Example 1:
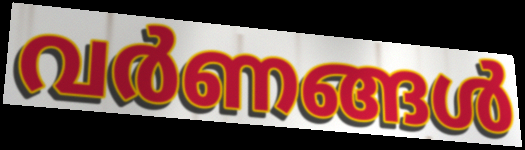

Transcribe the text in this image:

വർണങ്ങൾ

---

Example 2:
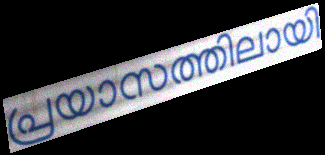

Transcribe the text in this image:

പ്രയാസത്തിലായി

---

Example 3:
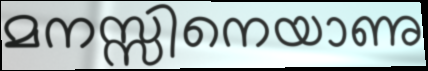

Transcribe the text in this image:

മനസ്സിനെയാണു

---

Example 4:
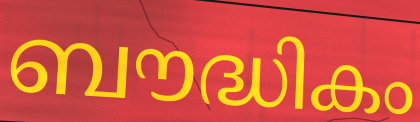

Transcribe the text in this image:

ബൗദ്ധികം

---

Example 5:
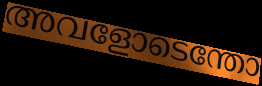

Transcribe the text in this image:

അവളോടെന്തോ